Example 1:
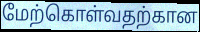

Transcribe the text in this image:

மேற்கொள்வதற்கான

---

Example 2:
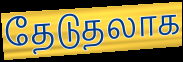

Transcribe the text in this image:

தேடுதலாக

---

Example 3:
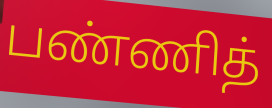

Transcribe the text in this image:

பண்ணித்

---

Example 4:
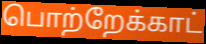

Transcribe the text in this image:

பொற்றேக்காட்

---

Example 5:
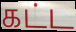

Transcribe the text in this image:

கட்ட